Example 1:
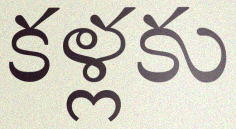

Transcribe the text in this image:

కళ్లకు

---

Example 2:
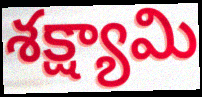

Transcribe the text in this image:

శక్ష్యామి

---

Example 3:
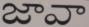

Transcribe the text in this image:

జావా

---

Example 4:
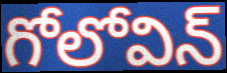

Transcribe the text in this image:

గోలోవిన్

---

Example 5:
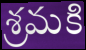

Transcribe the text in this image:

శ్రమకి